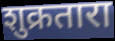
शुक्रतारा